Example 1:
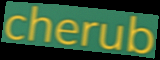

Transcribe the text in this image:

cherub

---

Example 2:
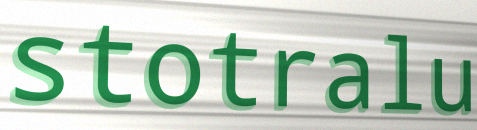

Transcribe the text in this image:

stotralu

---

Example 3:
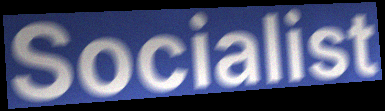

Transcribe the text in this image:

Socialist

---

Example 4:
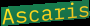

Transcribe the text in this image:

Ascaris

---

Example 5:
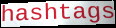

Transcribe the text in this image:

hashtags